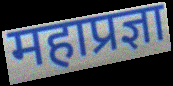
महाप्रज्ञा